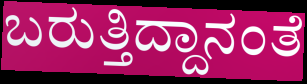
ಬರುತ್ತಿದ್ದಾನಂತೆ